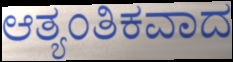
ಆತ್ಯಂತಿಕವಾದ